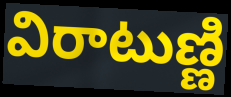
విరాటుణ్ణి